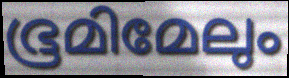
ഭൂമിമേലും